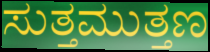
ಸುತ್ತಮುತ್ತಣ